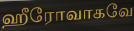
ஹீரோவாகவே